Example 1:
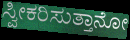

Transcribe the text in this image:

ಸ್ವೀಕರಿಸುತ್ತಾನೋ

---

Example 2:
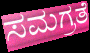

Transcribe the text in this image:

ಸಮಗ್ರತೆ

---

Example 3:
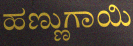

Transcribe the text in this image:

ಹಣ್ಣುಗಾಯಿ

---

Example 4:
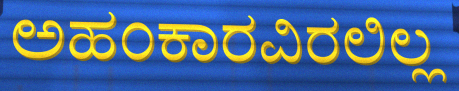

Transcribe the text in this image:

ಅಹಂಕಾರವಿರಲಿಲ್ಲ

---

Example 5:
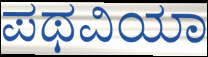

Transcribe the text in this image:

ಪಥವಿಯಾ